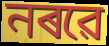
নৰৱে